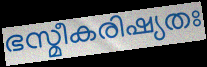
ഭസ്മീകരിഷ്യതഃ